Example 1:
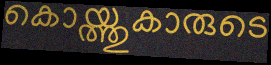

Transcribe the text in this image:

കൊയ്ത്തുകാരുടെ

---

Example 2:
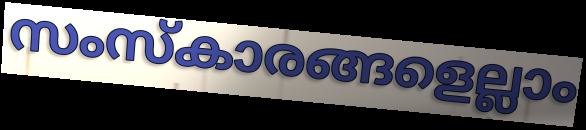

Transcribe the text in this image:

സംസ്കാരങ്ങളെല്ലാം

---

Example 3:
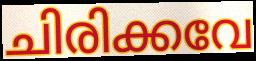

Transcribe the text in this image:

ചിരിക്കവേ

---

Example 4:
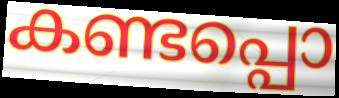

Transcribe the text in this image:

കണ്ടപ്പൊ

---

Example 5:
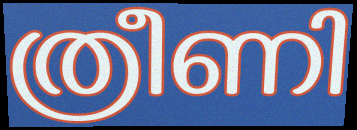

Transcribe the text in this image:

ത്രീണി